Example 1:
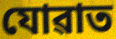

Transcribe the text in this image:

যোৱাত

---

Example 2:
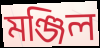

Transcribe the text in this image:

মঞ্জিল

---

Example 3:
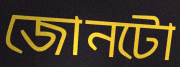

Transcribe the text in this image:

জোনটো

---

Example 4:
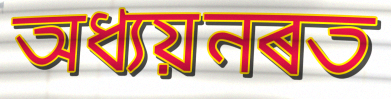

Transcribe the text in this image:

অধ্যয়নৰত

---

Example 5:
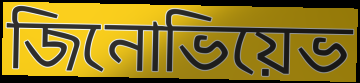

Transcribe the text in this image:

জিনোভিয়েভ